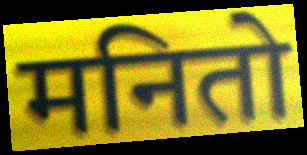
मनितो